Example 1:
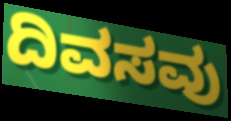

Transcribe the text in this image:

ದಿವಸವು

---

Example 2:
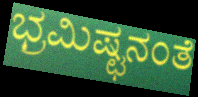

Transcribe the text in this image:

ಭ್ರಮಿಷ್ಟನಂತೆ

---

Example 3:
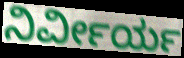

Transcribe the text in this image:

ನಿರ್ವೀರ್ಯ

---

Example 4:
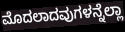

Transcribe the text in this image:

ಮೊದಲಾದವುಗಳನ್ನೆಲ್ಲಾ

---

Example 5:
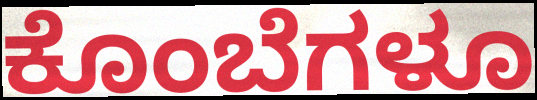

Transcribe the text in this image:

ಕೊಂಬೆಗಳೂ